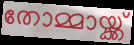
തോമ്മായ്ക്ക്